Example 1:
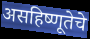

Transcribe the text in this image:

असहिष्णूतेचे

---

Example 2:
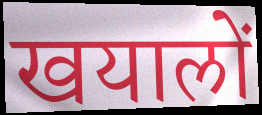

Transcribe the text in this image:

खयालों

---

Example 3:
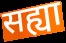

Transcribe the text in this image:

सह्या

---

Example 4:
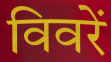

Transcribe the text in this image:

विवरें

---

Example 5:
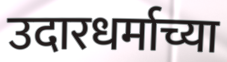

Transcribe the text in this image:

उदारधर्माच्या